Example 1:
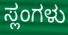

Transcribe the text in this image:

ಸ್ಲಂಗಳು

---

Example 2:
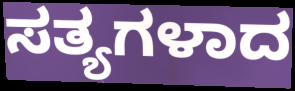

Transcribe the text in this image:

ಸತ್ಯಗಳಾದ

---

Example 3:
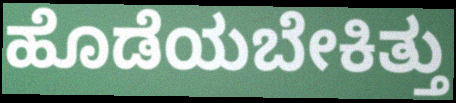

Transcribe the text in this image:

ಹೊಡೆಯಬೇಕಿತ್ತು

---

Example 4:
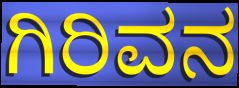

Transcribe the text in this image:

ಗಿರಿವನ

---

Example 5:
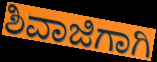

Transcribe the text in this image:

ಶಿವಾಜಿಗಾಗಿ